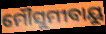
ମୌସୁମୀବାୟୁ